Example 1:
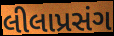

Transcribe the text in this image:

લીલાપ્રસંગ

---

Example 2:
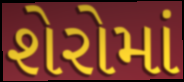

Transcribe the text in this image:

શેરોમાં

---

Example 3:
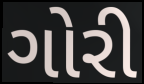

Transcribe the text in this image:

ગોરી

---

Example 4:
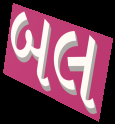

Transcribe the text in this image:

બલ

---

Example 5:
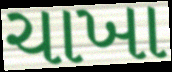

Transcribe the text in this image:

ચાખા